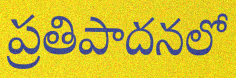
ప్రతిపాదనలో